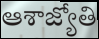
ఆశాజ్యోతి